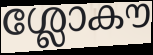
ശ്ലോകൗ